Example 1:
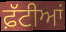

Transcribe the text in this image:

ਫ਼ੱਟੀਆਂ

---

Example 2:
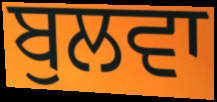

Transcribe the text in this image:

ਬੁਲਵਾ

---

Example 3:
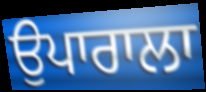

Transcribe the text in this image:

ਉਪਾਰਾਲਾ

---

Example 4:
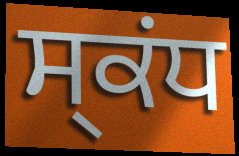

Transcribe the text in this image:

ਸ੍ਕਂਧ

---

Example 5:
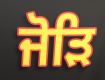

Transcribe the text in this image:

ਜੋੜਿ